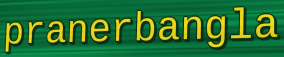
pranerbangla